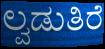
ಲ್ವಡುತಿರೆ